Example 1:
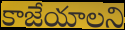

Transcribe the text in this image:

కాజేయాలని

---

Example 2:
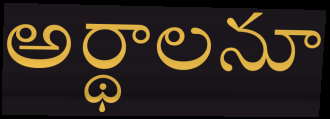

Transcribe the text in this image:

అర్థాలనూ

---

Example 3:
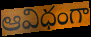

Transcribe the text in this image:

ఆవిధంగా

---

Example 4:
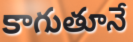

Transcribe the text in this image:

కాగుతూనే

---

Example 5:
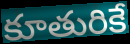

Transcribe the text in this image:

కూతురికే